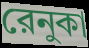
রেনুকা